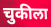
चुकीला